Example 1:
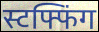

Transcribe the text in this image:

स्टफ्फिंग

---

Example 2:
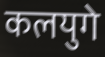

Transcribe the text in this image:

कलयुगे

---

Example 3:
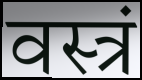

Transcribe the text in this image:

वस्त्रं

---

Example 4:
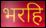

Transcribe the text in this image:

भरहि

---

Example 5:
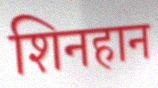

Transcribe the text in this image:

शिनहान